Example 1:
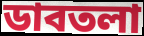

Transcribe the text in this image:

ডাবতলা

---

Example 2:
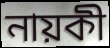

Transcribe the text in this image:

নায়কী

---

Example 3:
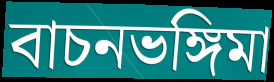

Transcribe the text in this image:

বাচনভঙ্গিমা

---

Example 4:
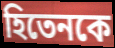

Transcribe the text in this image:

হিতেনকে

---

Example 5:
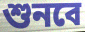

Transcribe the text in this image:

শুনবে